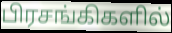
பிரசங்கிகளில்